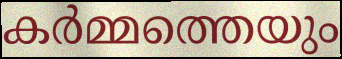
കർമ്മത്തെയും